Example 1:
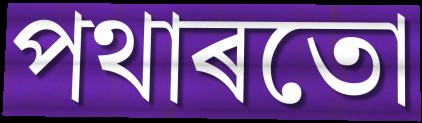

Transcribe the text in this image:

পথাৰতো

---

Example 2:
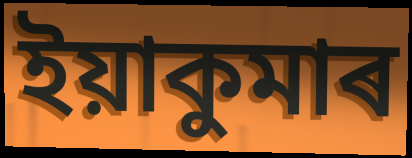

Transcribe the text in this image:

ইয়াকুমাৰ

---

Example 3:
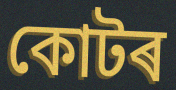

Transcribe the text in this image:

কোটৰ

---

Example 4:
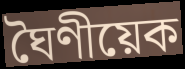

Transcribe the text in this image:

ঘৈণীয়েক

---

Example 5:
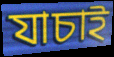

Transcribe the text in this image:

যাচাই